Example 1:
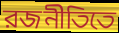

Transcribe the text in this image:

রজনীতিতে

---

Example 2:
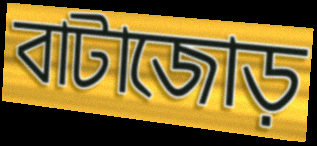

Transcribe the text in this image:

বাটাজোড়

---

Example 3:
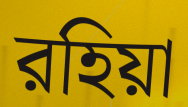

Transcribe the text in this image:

রহিয়া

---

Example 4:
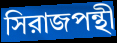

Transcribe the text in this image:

সিরাজপন্থী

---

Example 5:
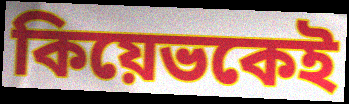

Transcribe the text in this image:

কিয়েভকেই